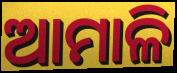
ଆମାଳି